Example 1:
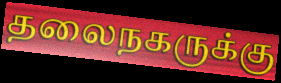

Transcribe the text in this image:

தலைநகருக்கு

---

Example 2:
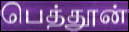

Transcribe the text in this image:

பெத்தூன்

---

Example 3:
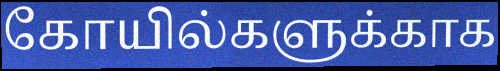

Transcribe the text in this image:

கோயில்களுக்காக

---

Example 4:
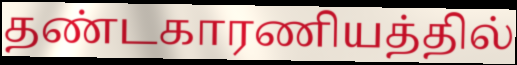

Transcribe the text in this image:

தண்டகாரணியத்தில்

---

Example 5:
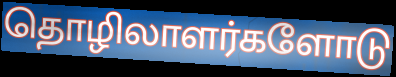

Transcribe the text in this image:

தொழிலாளர்களோடு